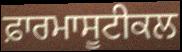
ਫ਼ਾਰਮਾਸੂਟੀਕਲ